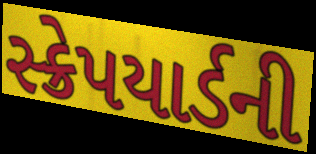
સ્ક્રેપયાર્ડની